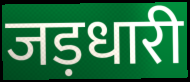
जड़धारी